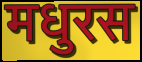
मधुरस